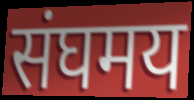
संघमय